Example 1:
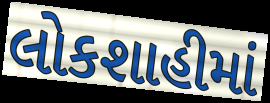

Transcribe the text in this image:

લોકશાહીમાં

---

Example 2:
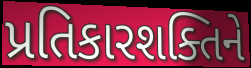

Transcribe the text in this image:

પ્રતિકારશક્તિને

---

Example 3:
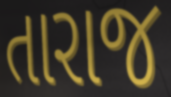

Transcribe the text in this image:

તારાજ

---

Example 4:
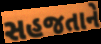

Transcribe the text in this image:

સહજતાને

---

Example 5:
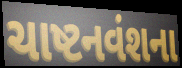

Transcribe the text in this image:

ચાષ્ટનવંશના